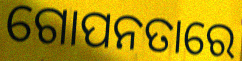
ଗୋପନତାରେ